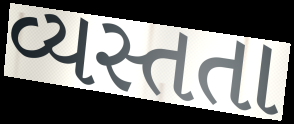
વ્યસ્તતા